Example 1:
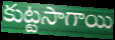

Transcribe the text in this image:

కుట్టసాగాయి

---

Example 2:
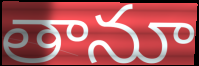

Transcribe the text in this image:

తానూ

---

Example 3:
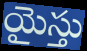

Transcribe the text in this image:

యైస్తు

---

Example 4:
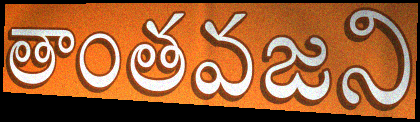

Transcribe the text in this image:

తాంతవజని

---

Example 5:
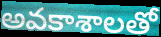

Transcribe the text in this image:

అవకాశాలతో